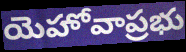
యెహోవాప్రభు